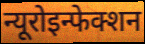
न्यूरोइन्फेक्शन